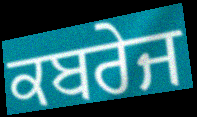
ਕਬਰੇਜ